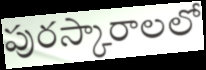
పురస్కారాలలో